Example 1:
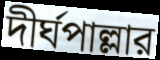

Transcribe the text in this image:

দীর্ঘপাল্লার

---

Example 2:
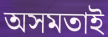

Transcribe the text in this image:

অসমতাই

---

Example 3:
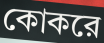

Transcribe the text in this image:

কোকরে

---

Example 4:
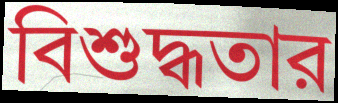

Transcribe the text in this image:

বিশুদ্ধতার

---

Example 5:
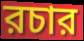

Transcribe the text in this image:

রচার